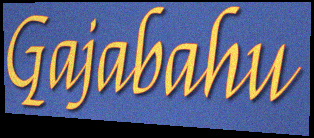
Gajabahu